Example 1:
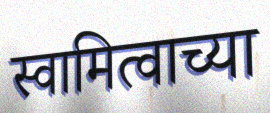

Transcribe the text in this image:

स्वामित्वाच्या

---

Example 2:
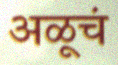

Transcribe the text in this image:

अळूचं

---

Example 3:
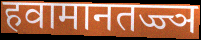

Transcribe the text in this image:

हवामानतज्ज्ञ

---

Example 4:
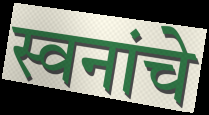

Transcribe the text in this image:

स्वनांचे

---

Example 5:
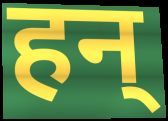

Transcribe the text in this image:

हन्